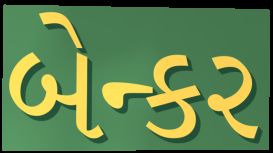
બેન્કર